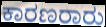
ಕಾರಣರಾರು